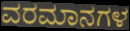
ವರಮಾನಗಳ